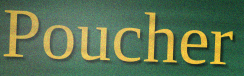
Poucher